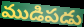
ముడిపడు